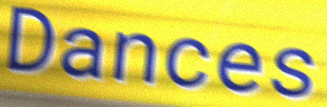
Dances